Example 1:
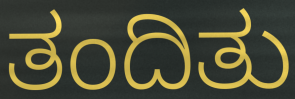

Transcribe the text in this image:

ತಂದಿತು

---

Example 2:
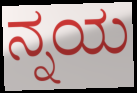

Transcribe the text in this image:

ನ್ನಯ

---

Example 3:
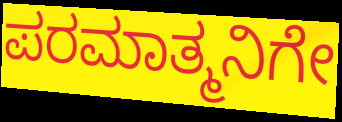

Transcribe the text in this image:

ಪರಮಾತ್ಮನಿಗೇ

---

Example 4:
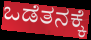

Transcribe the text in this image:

ಒಡೆತನಕ್ಕೆ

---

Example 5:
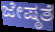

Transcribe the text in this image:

ಜೇಷ್ಠತೆ